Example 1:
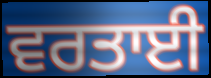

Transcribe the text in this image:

ਵਰਤਾਈ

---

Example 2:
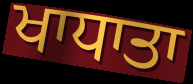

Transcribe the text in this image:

ਖਾਧਾਤਾ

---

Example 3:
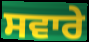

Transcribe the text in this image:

ਸਵਾਰੇ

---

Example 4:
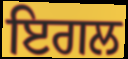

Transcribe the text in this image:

ਇਗਲ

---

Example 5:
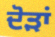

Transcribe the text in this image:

ਦੋੜਾਂ